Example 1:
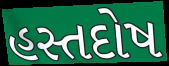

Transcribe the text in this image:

હસ્તદોષ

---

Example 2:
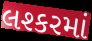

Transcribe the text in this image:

લશ્કરમાં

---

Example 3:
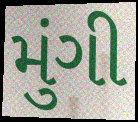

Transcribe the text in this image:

મુંગી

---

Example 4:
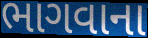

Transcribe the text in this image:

ભાગવાના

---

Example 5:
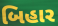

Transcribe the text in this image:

બિહાર